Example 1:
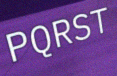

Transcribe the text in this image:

PQRST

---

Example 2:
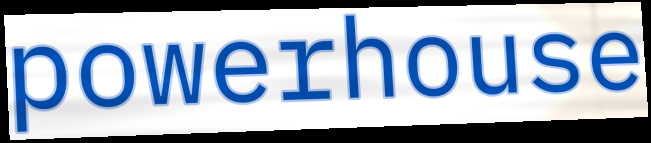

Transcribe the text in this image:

powerhouse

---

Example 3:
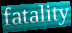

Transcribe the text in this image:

fatality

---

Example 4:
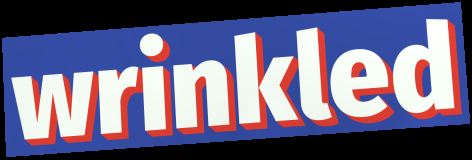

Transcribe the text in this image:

wrinkled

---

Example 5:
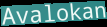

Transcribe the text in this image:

Avalokan